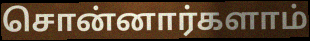
சொன்னார்களாம்